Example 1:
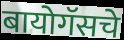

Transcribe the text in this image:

बायोगॅसचे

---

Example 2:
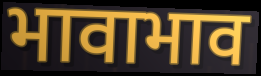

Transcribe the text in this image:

भावाभाव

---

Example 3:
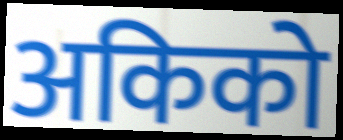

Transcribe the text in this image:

अकिको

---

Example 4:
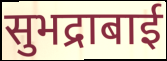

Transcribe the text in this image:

सुभद्राबाई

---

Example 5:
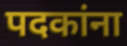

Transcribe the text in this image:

पदकांना